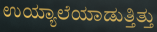
ಉಯ್ಯಾಲೆಯಾಡುತ್ತಿತ್ತು